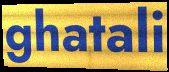
ghatali